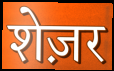
शेज़र